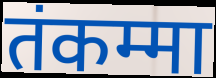
तंकम्मा